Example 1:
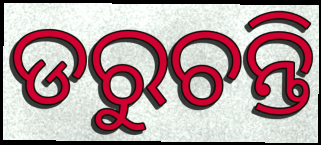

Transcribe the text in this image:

ଡରୁଚନ୍ତି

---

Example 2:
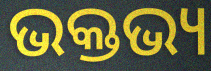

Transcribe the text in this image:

ଭକ୍ତଭ୍ୟ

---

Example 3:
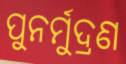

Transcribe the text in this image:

ପୁନର୍ମୁଦ୍ରଣ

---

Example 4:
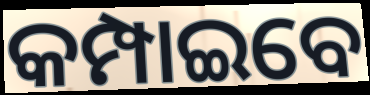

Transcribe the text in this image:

କମ୍ପାଇବେ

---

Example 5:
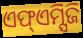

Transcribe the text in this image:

ଏଫ୍ଏମ୍ସିଜି